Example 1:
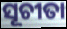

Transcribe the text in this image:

ସୂଚୀତା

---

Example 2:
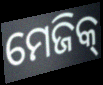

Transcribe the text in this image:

ମେଜିକ୍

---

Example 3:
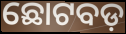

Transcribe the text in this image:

ଛୋଟବଡ଼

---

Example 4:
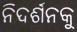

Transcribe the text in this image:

ନିଦର୍ଶନକୁ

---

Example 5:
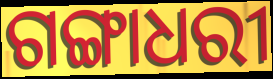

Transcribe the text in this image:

ଗଙ୍ଗାଧରୀ